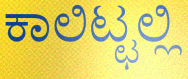
ಕಾಲಿಟ್ಟಲ್ಲಿ